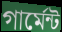
গার্মেন্ট